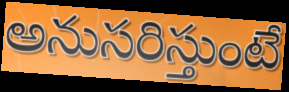
అనుసరిస్తుంటే